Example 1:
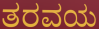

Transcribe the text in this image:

ತರವಯ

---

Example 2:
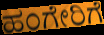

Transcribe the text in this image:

ಹಂಗೇರಿಗೆ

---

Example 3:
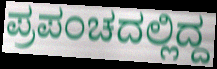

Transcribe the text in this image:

ಪ್ರಪಂಚದಲ್ಲಿದ್ದ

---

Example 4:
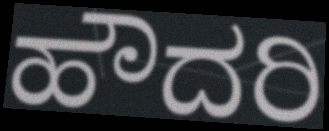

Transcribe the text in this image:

ಹೌದರಿ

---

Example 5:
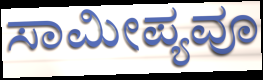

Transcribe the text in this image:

ಸಾಮೀಪ್ಯವೂ